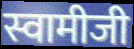
स्‍वामीजी